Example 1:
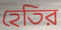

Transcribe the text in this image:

হেতির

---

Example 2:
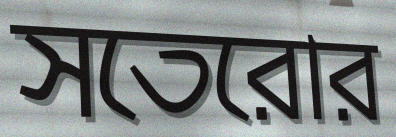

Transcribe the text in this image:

সতেরোর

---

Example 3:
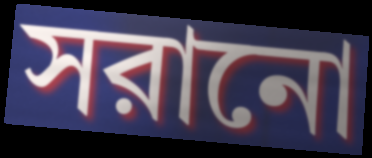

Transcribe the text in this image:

সরানো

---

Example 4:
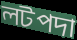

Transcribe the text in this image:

লটপদা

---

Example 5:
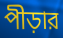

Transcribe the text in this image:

পীড়ার